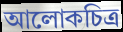
আলোকচিত্র